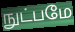
நுட்பமே